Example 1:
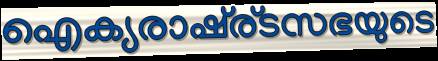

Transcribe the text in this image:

ഐക്യരാഷ്ര്ടസഭയുടെ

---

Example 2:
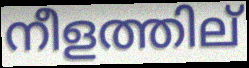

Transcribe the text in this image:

നീളത്തില്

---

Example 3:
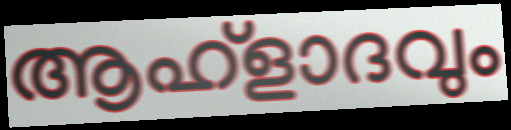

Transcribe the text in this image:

ആഹ്ളാദവും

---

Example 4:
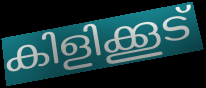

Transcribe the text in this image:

കിളിക്കൂട്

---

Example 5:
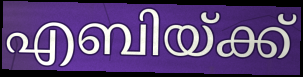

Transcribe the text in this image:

എബിയ്ക്ക്